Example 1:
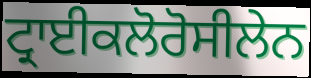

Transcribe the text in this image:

ਟ੍ਰਾਈਕਲੋਰੋਸੀਲੇਨ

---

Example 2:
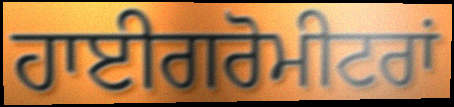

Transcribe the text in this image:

ਹਾਈਗਰੋਮੀਟਰਾਂ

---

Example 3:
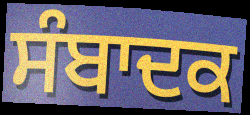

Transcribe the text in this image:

ਸੰਬਾਦਕ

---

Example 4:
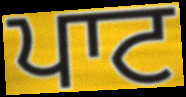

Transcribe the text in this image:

ਪਾਟ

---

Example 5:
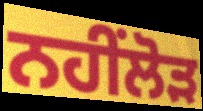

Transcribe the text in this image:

ਨਹੀਂਲੋੜ